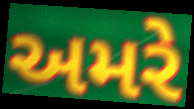
અમરે